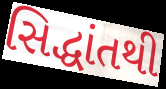
સિદ્ધાંતથી